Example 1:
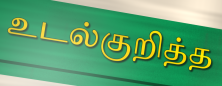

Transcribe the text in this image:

உடல்குறித்த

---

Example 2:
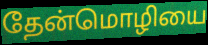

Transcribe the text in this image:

தேன்மொழியை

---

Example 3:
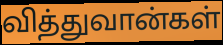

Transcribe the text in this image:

வித்துவான்கள்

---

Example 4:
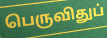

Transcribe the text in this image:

பெருவிதுப்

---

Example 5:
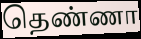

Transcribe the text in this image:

தெண்ணா